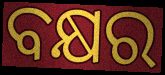
ବକ୍ଷର